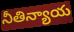
నీతిన్యాయ